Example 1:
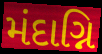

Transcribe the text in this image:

મંદાગ્નિ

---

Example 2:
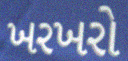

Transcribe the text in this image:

ખરખરો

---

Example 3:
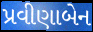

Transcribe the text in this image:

પ્રવીણાબેન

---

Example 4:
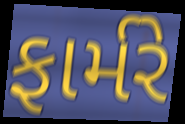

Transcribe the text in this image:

ફાર્મરે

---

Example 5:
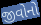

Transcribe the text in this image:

જીવોનો